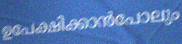
ഉപേക്ഷിക്കാൻപോലും